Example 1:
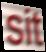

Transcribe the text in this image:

sit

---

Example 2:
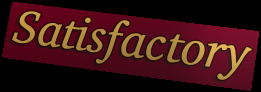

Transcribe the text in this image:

Satisfactory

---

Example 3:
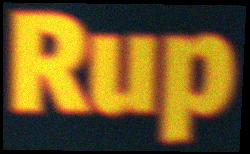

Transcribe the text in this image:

Rup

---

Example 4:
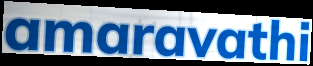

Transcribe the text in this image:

amaravathi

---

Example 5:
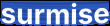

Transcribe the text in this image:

surmise